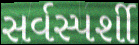
સર્વસ્પર્શી